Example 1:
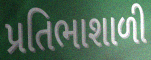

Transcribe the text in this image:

પ્રતિભાશાળી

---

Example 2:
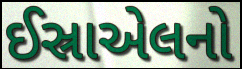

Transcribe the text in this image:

ઈસ્રાએલનો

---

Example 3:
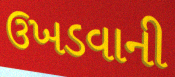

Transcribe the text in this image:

ઉખડવાની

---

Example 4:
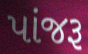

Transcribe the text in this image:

પાંજરૂ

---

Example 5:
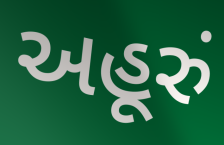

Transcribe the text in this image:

અહૂરું